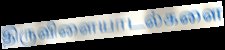
திருவிளையாடல்களை